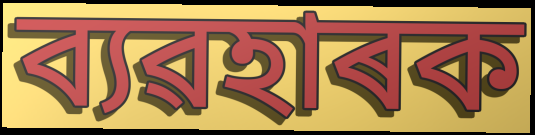
ব্যৱহাৰক